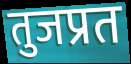
तुजप्रत